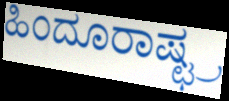
ಹಿಂದೂರಾಷ್ಟ್ರ